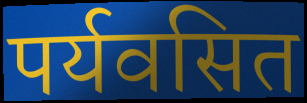
पर्यवसित